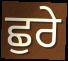
ਛੁਰੇ